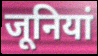
जूनियां